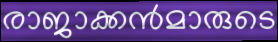
രാജാക്കൻമാരുടെ